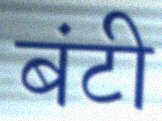
बंटी